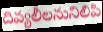
దివ్యలీలనునిలిపి